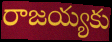
రాజయ్యకు